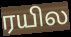
ரயில